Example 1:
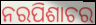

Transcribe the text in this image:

ନରପିଶାଚର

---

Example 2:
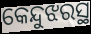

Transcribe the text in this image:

କେନ୍ଦୁଝରସ୍ଥ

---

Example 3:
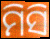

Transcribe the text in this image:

ମିସି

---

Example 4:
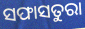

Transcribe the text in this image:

ସଫାସତୁରା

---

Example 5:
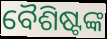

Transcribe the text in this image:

ବୈଶିଷ୍ଟଙ୍କ